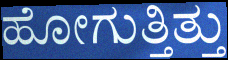
ಹೋಗುತ್ತಿತ್ತು